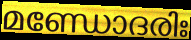
മണ്ഡോദരിഃ